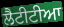
ਲੈਟੀਟੀਆ